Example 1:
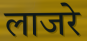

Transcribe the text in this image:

लाजरे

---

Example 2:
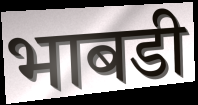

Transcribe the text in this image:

भाबडी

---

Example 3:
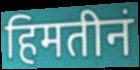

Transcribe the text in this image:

हिमतीनं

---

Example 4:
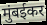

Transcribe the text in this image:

मुंबईकर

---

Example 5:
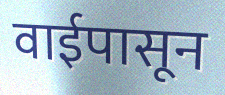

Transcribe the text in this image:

वाईपासून